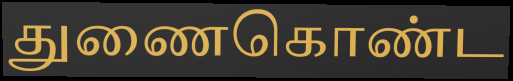
துணைகொண்ட